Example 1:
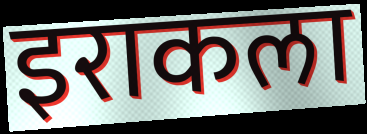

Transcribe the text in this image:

इराकला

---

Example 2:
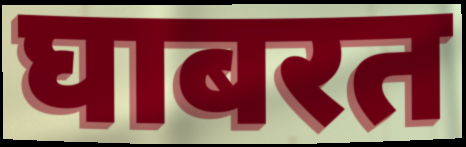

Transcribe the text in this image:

घाबरत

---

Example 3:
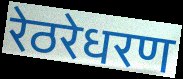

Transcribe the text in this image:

रेठरेधरण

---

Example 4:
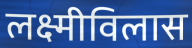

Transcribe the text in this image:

लक्ष्मीविलास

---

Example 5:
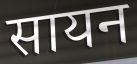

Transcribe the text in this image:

सायन